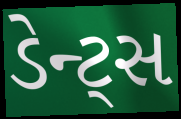
ડેન્ટ્સ